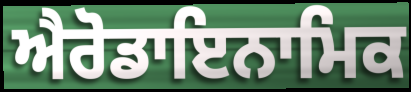
ਐਰੋਡਾਇਨਾਮਿਕ